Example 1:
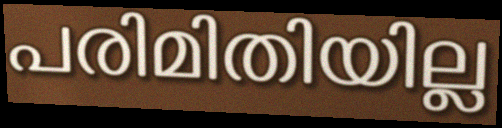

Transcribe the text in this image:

പരിമിതിയില്ല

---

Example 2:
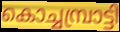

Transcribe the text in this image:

കൊച്ചമ്പ്രാട്ടി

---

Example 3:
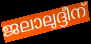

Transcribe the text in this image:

ജലാലുദ്ദീന്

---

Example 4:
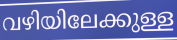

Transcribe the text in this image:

വഴിയിലേക്കുള്ള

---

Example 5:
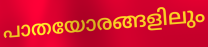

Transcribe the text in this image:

പാതയോരങ്ങളിലും